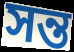
সন্ত